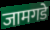
जामगडे